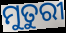
ମୁତୁରୀ